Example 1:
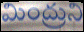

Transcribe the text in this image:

మింద్రుని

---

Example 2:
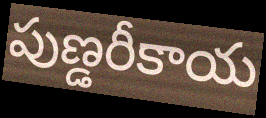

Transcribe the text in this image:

పుణ్డరీకాయ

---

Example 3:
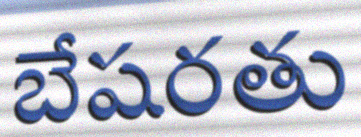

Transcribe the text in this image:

బేషరతు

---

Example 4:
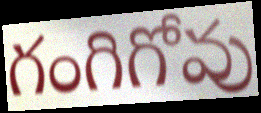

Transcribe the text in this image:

గంగిగోవు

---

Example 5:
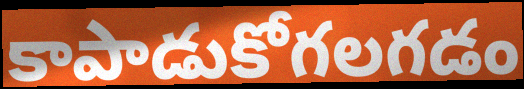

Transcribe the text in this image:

కాపాడుకోగలగడం